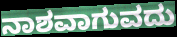
ನಾಶವಾಗುವದು